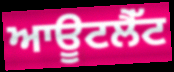
ਆਊਟਲੈੱਟ